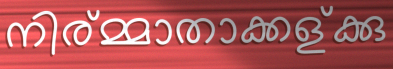
നിര്മ്മാതാക്കള്ക്കു